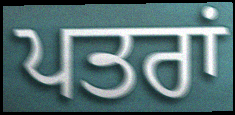
ਪਤਰਾਂ